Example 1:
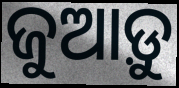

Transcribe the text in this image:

ଜୁଆଡ଼ୁ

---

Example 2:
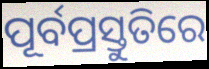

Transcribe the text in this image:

ପୂର୍ବପ୍ରସ୍ତୁତିରେ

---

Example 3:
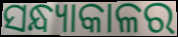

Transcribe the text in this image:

ସନ୍ଧ୍ୟାକାଳର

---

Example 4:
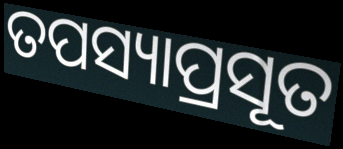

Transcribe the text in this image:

ତପସ୍ୟାପ୍ରସୂତ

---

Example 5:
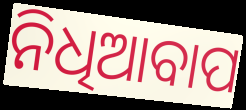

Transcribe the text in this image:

ନିଧିଆବାପ